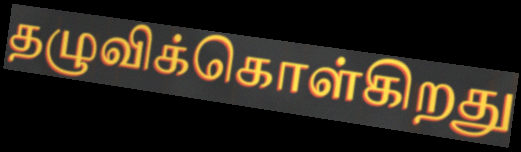
தழுவிக்கொள்கிறது